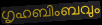
ഗൃഹബിംബവും